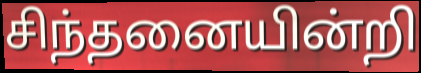
சிந்தனையின்றி